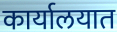
कार्यालयात